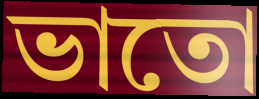
ভাতো